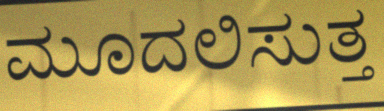
ಮೂದಲಿಸುತ್ತ